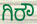
ಗಿರೌ